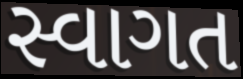
સ્વાગત